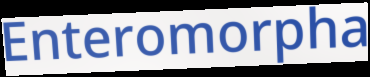
Enteromorpha